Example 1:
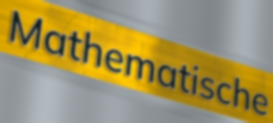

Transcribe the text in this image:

Mathematische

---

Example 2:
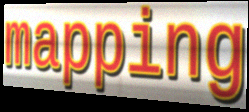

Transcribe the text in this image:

mapping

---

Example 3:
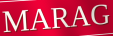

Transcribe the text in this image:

MARAG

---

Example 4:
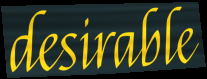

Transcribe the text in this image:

desirable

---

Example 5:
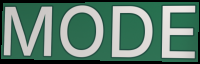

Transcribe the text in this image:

MODE